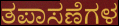
ತಪಾಸಣೆಗಳ